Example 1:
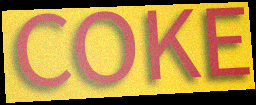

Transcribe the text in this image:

COKE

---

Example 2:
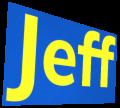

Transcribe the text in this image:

Jeff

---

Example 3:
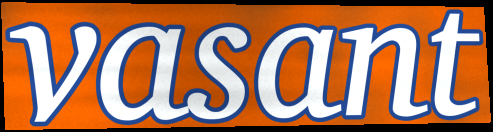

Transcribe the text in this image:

vasant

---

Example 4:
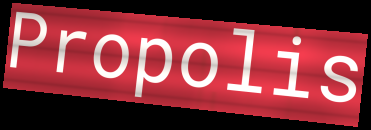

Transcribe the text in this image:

Propolis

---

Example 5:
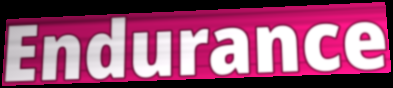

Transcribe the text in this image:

Endurance